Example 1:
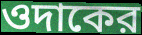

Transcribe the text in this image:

ওদাকের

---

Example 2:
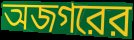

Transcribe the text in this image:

অজগরের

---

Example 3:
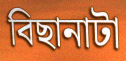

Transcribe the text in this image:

বিছানাটা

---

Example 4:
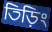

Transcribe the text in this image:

তিড়িং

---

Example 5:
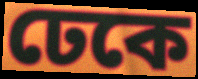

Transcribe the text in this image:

ঢেকে